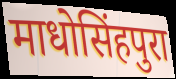
माधोसिंहपुरा